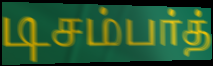
டிசம்பர்த்